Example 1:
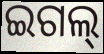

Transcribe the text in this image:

ଇଗଲ୍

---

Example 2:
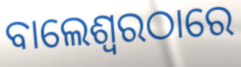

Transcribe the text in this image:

ବାଲେଶ୍ଵରଠାରେ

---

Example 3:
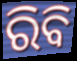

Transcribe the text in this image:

ରିବି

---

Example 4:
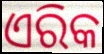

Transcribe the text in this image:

ଏରିକ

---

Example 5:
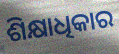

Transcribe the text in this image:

ଶିକ୍ଷାଧିକାର